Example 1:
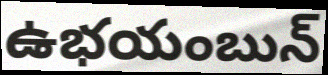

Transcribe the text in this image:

ఉభయంబున్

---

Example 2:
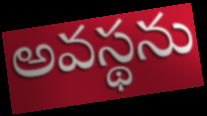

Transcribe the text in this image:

అవస్థను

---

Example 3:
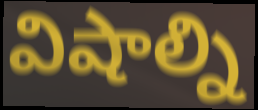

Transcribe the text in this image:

విషాల్ని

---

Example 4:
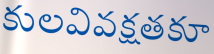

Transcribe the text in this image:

కులవివక్షతకూ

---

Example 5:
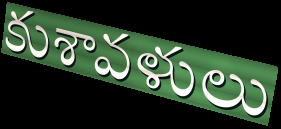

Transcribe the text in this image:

కుశావళులు